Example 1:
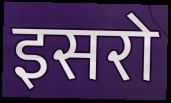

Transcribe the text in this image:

इसरो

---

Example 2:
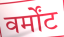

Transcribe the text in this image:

वर्मोंट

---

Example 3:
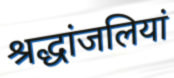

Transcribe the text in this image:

श्रद्धांजलियां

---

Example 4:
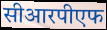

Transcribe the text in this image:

सीआरपीएफ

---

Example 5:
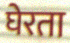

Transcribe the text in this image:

घेरता